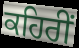
ਕਹਿਰੀਂ